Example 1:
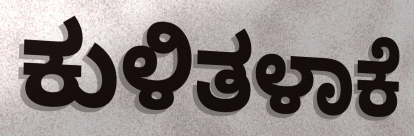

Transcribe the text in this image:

ಕುಳಿತಳಾಕೆ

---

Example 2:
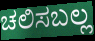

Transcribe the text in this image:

ಚಲಿಸಬಲ್ಲ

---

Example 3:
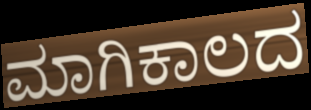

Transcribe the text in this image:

ಮಾಗಿಕಾಲದ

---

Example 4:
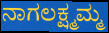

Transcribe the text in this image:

ನಾಗಲಕ್ಷ್ಮಮ್ಮ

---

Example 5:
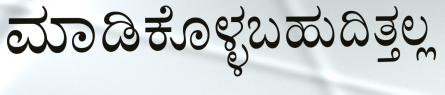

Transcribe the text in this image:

ಮಾಡಿಕೊಳ್ಳಬಹುದಿತ್ತಲ್ಲ